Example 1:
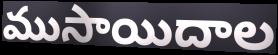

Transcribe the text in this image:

ముసాయిదాల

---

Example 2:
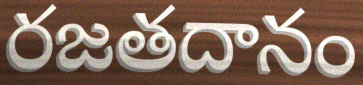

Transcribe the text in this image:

రజతదానం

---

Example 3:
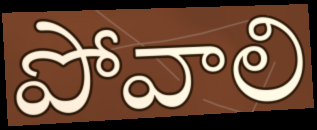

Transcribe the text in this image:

పోవాలి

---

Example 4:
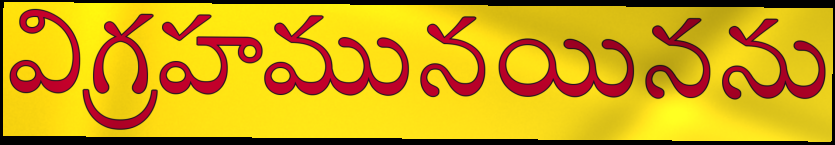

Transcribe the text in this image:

విగ్రహమునయినను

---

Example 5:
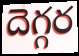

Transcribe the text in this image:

దెగ్గర